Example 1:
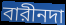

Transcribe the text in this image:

বারীনদা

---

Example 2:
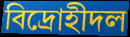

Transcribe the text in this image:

বিদ্রোহীদল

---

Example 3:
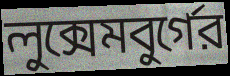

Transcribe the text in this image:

লুক্সেমবুর্গের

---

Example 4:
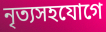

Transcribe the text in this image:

নৃত্যসহযোগে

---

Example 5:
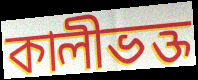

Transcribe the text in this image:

কালীভক্ত